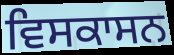
ਵਿਸਕਾਸਨ